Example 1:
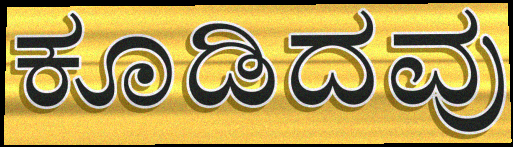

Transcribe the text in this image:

ಕೂಡಿದವು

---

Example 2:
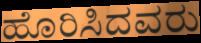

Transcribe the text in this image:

ಹೊರಿಸಿದವರು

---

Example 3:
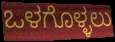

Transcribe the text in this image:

ಒಳಗೊಳ್ಳಲು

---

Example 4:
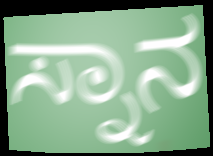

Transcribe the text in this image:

ಸ್ನಾನ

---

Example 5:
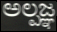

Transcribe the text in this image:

ಅಲ್ಪಜ್ಞ